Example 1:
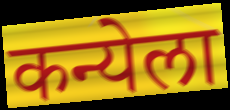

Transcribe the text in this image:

कन्येला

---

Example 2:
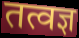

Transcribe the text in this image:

तत्वज्ञ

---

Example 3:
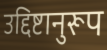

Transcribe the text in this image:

उद्दिष्टानुरूप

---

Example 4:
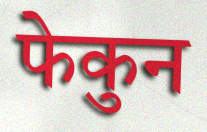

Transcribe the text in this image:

फेकुन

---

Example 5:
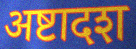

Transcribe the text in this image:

अष्टादश